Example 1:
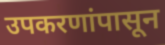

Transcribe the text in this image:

उपकरणांपासून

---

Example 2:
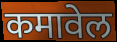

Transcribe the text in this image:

कमावेल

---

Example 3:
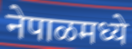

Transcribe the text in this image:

नेपाळमध्ये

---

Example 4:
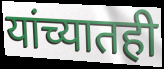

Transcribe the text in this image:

यांच्यातही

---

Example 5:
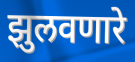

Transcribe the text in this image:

झुलवणारे